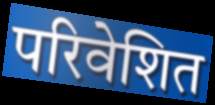
परिवेशित